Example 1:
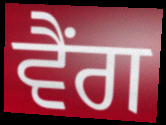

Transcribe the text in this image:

ਵੈਂਗ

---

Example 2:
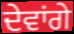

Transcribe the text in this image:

ਦੇਵਾਂਗੇ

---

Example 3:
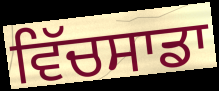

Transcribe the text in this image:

ਵਿੱਚਸਾਡਾ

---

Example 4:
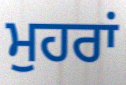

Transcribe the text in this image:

ਮੁਹਰਾਂ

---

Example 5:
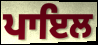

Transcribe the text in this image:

ਪਾਇਲ